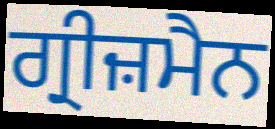
ਗ੍ਰੀਜ਼ਮੈਨ